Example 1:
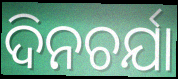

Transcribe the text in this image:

ଦିନଚର୍ଯା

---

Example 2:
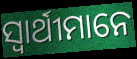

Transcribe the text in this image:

ସ୍ଵାର୍ଥୀମାନେ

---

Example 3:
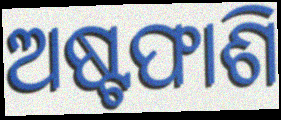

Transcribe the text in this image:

ଅଷ୍ଟଫାଶି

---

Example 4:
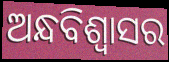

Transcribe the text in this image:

ଅନ୍ଧବିଶ୍ୱାସର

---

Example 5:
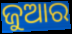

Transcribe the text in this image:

ଜୁଆର